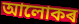
আলোকৰ